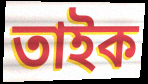
তাইক